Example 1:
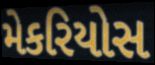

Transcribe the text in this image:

મેકરિયોસ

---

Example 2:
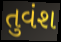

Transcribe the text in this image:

તુવંશ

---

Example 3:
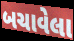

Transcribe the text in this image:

બચાવેલા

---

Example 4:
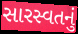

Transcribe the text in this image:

સારસ્વતનું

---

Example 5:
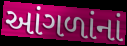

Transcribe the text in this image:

આંગળાંનાં